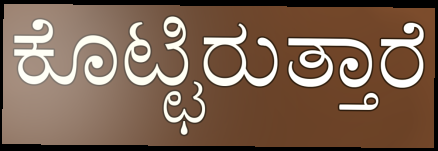
ಕೊಟ್ಟಿರುತ್ತಾರೆ